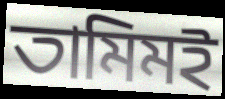
তামিমই